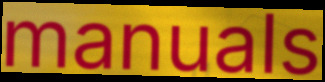
manuals